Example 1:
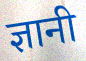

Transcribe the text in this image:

ज्ञानी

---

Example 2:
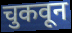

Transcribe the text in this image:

चुकवून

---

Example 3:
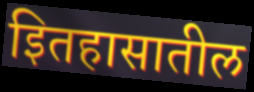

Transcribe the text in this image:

इितहासातील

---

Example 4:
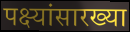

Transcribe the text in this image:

पक्ष्यांसारख्या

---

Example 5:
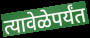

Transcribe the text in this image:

त्यावेळेपर्यंत